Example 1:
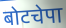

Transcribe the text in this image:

बोटचेपा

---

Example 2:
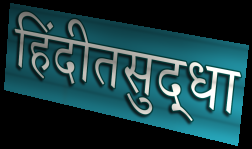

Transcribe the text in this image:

हिंदीतसुद्धा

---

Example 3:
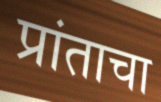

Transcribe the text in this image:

प्रांताचा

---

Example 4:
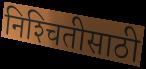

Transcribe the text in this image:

निश्चितीसाठी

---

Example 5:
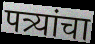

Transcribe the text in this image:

पत्र्यांचा